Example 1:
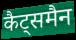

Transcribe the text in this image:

कैट्समैन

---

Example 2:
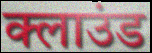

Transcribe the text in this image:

क्लाउंड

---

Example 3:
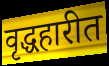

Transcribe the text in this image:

वृद्धहारीत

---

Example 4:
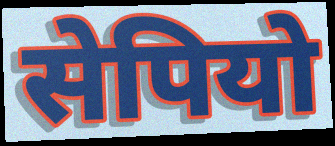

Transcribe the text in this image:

सेपियो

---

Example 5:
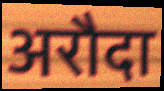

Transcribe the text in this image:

अरौदा